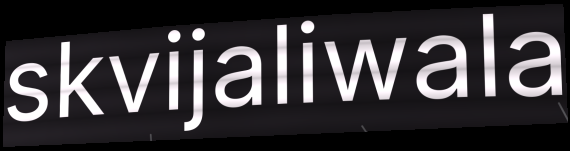
skvijaliwala